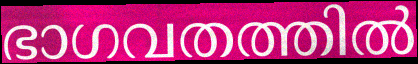
ഭാഗവതത്തിൽ